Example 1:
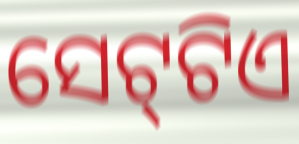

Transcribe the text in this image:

ସେଟ୍‍ଟିଏ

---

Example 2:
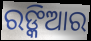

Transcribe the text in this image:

ରଙ୍କିଆର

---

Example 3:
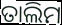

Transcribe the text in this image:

ତାଲିମ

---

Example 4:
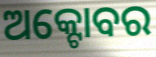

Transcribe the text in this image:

ଅକ୍ଟୋବର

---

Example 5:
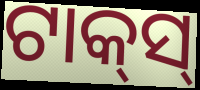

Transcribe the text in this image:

ଟାକ୍‍ସ୍